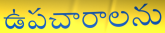
ఉపచారాలను